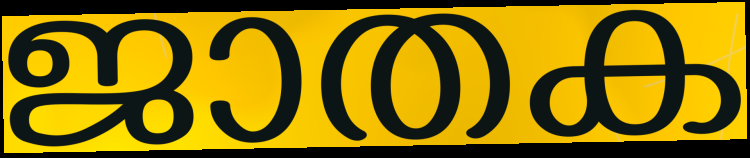
ജാതക